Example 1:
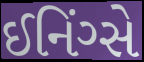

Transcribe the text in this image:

ઈનિંગ્સે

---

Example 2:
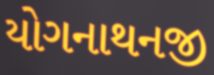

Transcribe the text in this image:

યોગનાથનજી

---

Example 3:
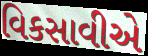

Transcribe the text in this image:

વિકસાવીએ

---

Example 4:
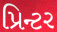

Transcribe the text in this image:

પ્રિન્ટર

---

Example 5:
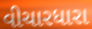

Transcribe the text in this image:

વીચારધારા